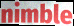
nimble